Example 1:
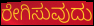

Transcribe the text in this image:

ರೇಗಿಸುವುದು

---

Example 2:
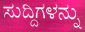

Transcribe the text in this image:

ಸುದ್ದಿಗಳನ್ನು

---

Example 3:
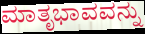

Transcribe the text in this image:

ಮಾತೃಭಾವವನ್ನು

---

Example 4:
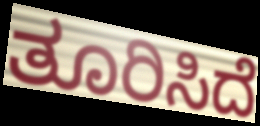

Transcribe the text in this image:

ತೂರಿಸಿದೆ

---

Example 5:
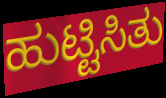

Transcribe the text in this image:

ಹುಟ್ಟಿಸಿತು